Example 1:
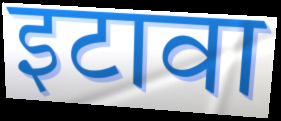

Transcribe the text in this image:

इटावा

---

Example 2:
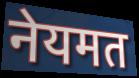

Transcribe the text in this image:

नेयमत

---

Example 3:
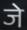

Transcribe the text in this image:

जे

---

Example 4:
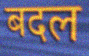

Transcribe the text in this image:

बदल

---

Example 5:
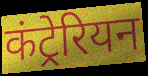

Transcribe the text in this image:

कंट्रेरियन